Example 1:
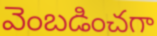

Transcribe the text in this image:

వెంబడించగా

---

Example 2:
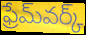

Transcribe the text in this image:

ఫ్రేమ్‌వర్క్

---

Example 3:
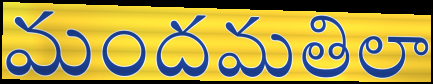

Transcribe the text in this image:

మందమతిలా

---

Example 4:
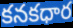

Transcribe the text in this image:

కనకధార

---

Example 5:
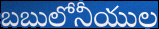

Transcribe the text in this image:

బబులోనీయుల